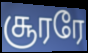
சூரரே